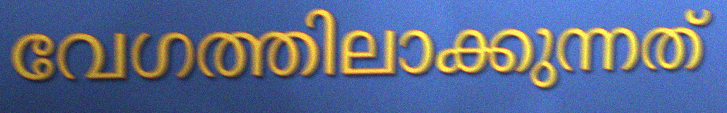
വേഗത്തിലാക്കുന്നത്